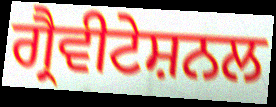
ਗ੍ਰੈਵੀਟੇਸ਼ਨਲ